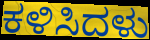
ಕಳಿಸಿದಳು